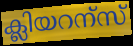
ക്ലിയറന്സ്